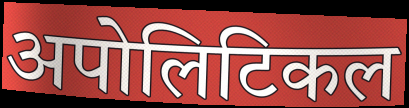
अपोलिटिकल